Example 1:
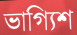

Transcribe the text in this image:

ভাগ্যিশ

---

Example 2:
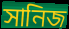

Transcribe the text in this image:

সানিজ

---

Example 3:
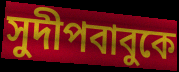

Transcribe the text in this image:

সুদীপবাবুকে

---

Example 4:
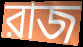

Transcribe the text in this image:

রাজ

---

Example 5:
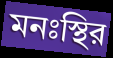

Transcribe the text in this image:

মনঃস্থির